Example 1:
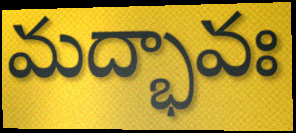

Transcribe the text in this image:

మద్భావః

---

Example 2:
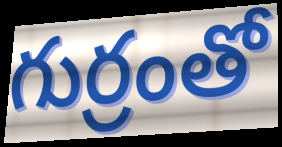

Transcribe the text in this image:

గుర్రంతో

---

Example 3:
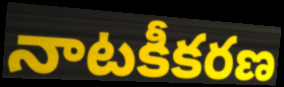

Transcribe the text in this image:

నాటకీకరణ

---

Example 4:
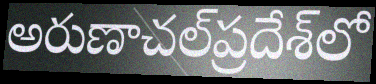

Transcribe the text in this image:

అరుణాచల్‌ప్రదేశ్‌లో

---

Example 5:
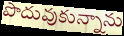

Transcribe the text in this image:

పొదువుకున్నాను